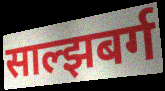
साल्झबर्ग